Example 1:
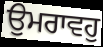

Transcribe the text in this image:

ਉਮਰਾਵਹੁ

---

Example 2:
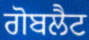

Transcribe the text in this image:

ਗੋਬਲੈਟ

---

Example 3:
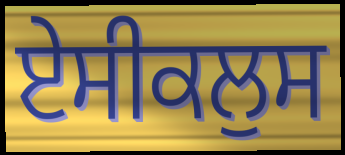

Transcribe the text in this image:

ਏਸੀਕਲੁਸ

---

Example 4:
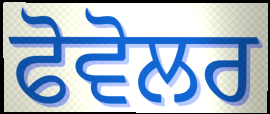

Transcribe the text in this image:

ਫੋਵੋਲਰ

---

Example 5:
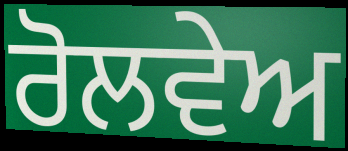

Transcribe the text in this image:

ਰੋਲਵੇਅ